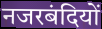
नजरबंदियों